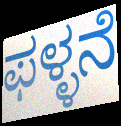
ಫಳ್ಳನೆ